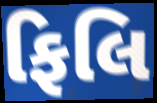
ફિલિ